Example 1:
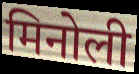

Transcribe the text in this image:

मिनोली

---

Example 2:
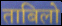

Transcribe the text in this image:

ताबिलो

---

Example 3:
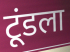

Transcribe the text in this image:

टूंडला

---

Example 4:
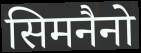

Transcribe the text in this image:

सिमनैनो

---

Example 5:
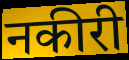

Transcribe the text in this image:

नकीरी